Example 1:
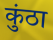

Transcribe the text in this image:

कुंठा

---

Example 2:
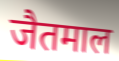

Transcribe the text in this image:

जैतमाल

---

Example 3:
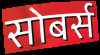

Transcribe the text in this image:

सोबर्स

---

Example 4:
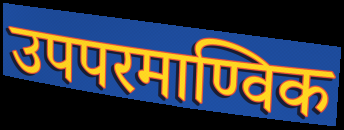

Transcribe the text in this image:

उपपरमाण्विक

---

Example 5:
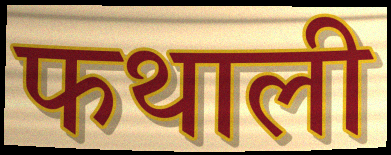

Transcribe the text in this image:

फथाली